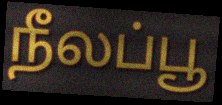
நீலப்பூ